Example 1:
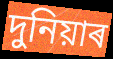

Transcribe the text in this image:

দুনিয়াৰ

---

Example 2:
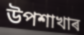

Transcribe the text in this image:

উপশাখাৰ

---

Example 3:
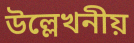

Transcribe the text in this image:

উল্লেখনীয়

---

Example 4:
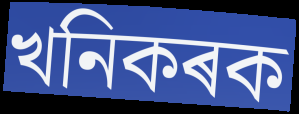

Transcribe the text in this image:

খনিকৰক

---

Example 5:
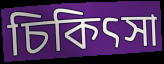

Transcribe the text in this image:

চিকিৎসা